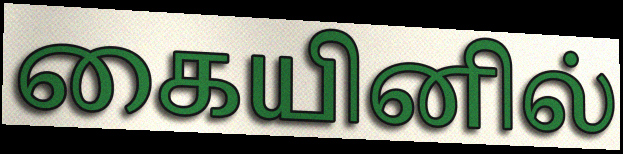
கையினில்